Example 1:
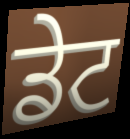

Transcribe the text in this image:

ਡੇਟ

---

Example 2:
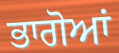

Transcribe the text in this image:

ਭਾਗੋਆਂ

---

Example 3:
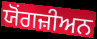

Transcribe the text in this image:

ਯੋਂਗਜ਼ੀਅਨ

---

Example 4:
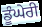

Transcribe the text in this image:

ਡੂੰਘੇਰੀ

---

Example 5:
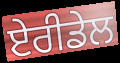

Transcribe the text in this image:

ਏਰੀਡੇਲ